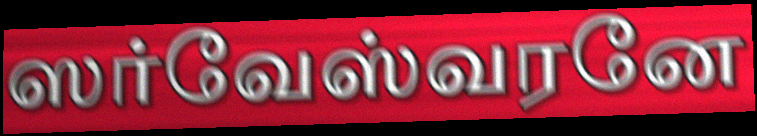
ஸர்வேஸ்வரனே